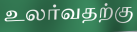
உலர்வதற்கு